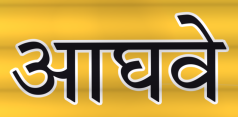
आघवे